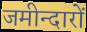
जमीन्दारों